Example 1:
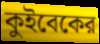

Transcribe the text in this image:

কুইবেকের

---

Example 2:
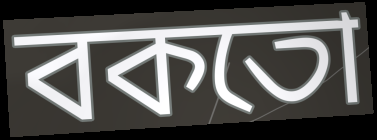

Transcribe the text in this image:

বকতো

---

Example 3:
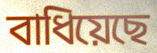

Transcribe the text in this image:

বাধিয়েছে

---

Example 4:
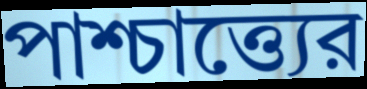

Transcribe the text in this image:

পাশ্চাত্ত্যের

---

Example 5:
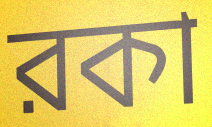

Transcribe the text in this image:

রকা